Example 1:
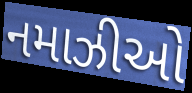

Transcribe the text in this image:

નમાઝીઓ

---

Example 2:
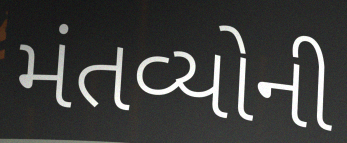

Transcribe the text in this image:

મંતવ્યોની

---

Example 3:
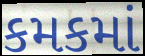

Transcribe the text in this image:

કમકમાં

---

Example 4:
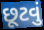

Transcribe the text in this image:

છૂટવું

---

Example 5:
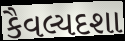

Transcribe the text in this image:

કૈવલ્યદશા